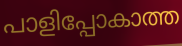
പാളിപ്പോകാത്ത